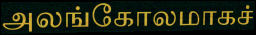
அலங்கோலமாகச்